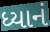
ધ્યાનં